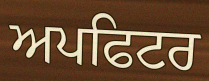
ਅਪਫਿਟਰ